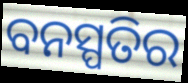
ବନସ୍ପତିର